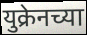
युक्रेनच्या